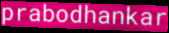
prabodhankar